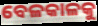
ବେଳକାଳକୁ